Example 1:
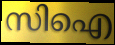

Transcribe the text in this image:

സിഐ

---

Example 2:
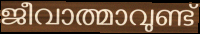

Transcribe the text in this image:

ജീവാത്മാവുണ്ട്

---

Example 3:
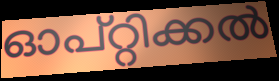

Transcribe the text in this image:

ഓപ്റ്റിക്കൽ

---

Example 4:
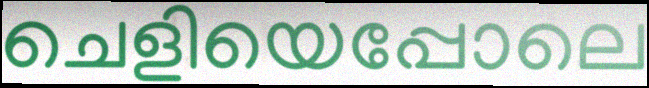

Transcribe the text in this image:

ചെളിയെപ്പോലെ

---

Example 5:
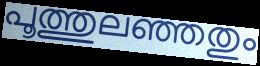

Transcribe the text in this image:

പൂത്തുലഞ്ഞതും